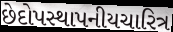
છેદોપસ્થાપનીયચારિત્ર